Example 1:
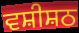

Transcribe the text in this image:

ਵਸ਼ੀਸ਼ਠ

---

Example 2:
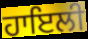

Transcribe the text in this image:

ਹਾਇਲੀ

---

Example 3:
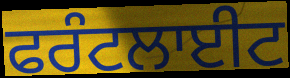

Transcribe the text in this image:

ਫਰੰਟਲਾਈਟ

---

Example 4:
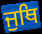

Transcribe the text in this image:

ਜੁਥਿ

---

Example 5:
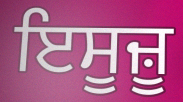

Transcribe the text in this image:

ਇਸੂਜ਼ੂ